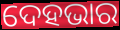
ଦେହଭାର